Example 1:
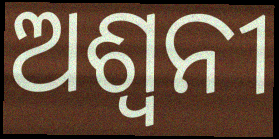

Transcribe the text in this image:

ଅଶ୍ୱନୀ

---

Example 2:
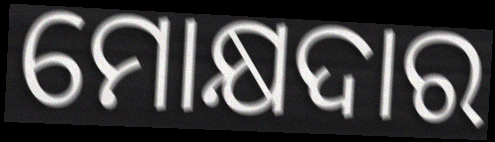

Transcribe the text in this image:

ମୋକ୍ଷଦାର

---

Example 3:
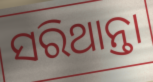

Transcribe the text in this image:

ସରିଥାନ୍ତା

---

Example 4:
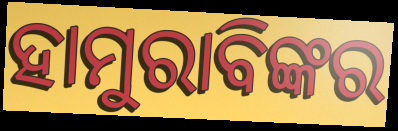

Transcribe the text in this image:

ହାମୁରାବିଙ୍କର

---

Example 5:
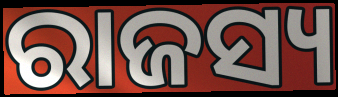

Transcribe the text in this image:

ରାଜସ୍ୟ